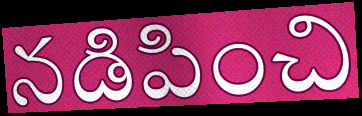
నడిపించి